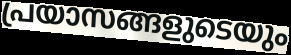
പ്രയാസങ്ങളുടെയും